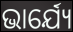
ଭାର୍ଯ୍ଯେ